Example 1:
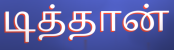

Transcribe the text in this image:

டித்தான்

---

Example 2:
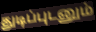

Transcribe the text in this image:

துடிப்புடனும்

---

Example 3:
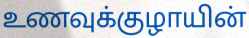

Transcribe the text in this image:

உணவுக்குழாயின்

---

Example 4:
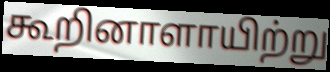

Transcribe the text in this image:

கூறினாளாயிற்று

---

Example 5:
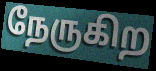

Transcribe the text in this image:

நேருகிற